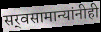
सर्वसामान्यांनीही